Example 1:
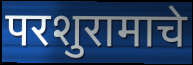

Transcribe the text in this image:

परशुरामाचे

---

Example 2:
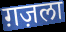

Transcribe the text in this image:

ग़ज़ला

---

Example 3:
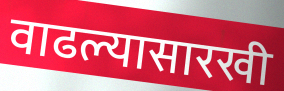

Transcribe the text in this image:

वाढल्यासारखी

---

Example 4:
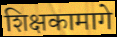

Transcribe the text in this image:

शिक्षकामागे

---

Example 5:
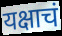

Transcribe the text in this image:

यक्षाचं